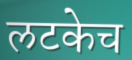
लटकेच